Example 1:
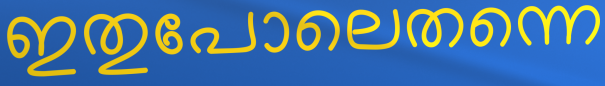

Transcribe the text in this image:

ഇതുപോലെതന്നെ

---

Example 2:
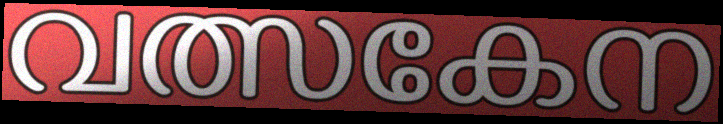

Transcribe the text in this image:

വത്സകേന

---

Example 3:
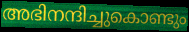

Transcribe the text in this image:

അഭിനന്ദിച്ചുകൊണ്ടും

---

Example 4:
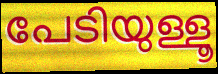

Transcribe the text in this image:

പേടിയുള്ളൂ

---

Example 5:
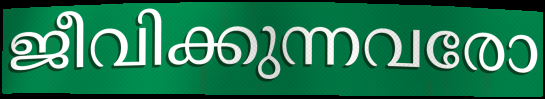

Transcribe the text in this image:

ജീവിക്കുന്നവരോ